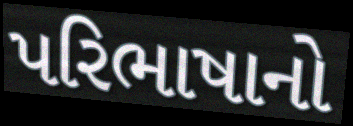
પરિભાષાનો